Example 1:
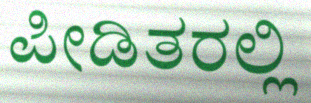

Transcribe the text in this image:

ಪೀಡಿತರಲ್ಲಿ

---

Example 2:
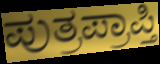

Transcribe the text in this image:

ಪುತ್ರಪ್ರಾಪ್ತಿ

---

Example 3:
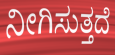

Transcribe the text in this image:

ನೀಗಿಸುತ್ತದೆ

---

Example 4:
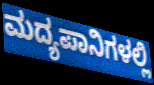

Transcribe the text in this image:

ಮದ್ಯಪಾನಿಗಳಲ್ಲಿ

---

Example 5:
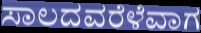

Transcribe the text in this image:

ಸಾಲದವರೆಳೆವಾಗ